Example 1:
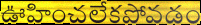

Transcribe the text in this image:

ఊహించలేకపోవడం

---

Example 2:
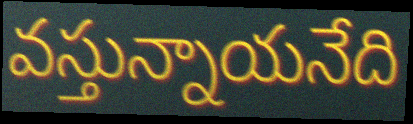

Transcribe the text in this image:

వస్తున్నాయనేది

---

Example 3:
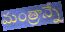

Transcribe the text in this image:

మంత్రాన్నే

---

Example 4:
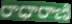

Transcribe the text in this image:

రాధారాణి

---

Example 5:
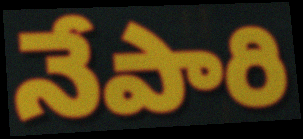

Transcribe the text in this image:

నేపారి